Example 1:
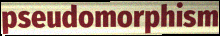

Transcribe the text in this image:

pseudomorphism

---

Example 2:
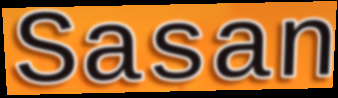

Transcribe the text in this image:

Sasan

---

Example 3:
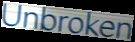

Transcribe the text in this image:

Unbroken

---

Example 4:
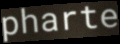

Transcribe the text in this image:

pharte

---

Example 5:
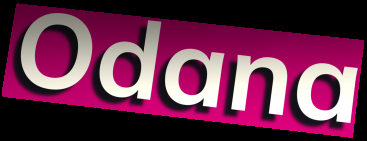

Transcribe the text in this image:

Odana